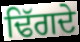
ਢਿੱਗਦੇ